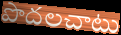
పొదలచాటు